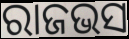
ରାଜଭସ